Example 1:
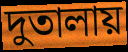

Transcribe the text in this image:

দুতালায়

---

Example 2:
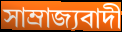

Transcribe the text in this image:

সাম্রাজ্যবাদী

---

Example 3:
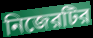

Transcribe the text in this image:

নিজেরটির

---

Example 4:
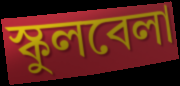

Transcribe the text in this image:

স্কুলবেলা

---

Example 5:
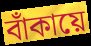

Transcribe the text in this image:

বাঁকায়ে